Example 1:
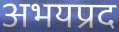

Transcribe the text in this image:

अभयप्रद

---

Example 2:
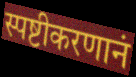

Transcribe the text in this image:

स्पष्टीकरणानं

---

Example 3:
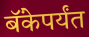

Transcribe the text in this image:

बॅंकेपर्यंत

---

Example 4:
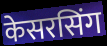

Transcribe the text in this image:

केसरसिंग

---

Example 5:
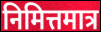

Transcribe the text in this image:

निमित्तमात्र